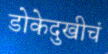
डोकेदुखीचं